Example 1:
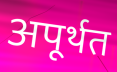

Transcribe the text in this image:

अपूर्थत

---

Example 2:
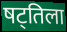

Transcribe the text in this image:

षट्तिला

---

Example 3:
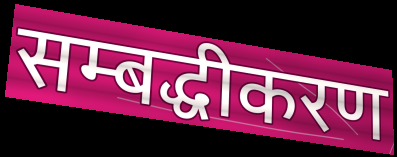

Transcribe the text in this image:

सम्बद्धीकरण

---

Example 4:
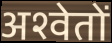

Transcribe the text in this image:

अश्वेतों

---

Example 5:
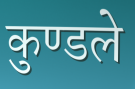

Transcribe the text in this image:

कुण्डले